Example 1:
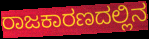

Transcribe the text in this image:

ರಾಜಕಾರಣದಲ್ಲಿನ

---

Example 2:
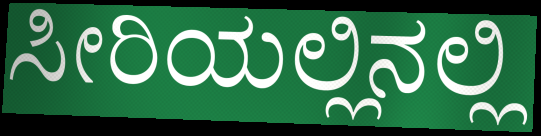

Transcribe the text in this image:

ಸೀರಿಯಲ್ಲಿನಲ್ಲಿ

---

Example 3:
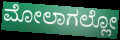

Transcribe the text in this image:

ಮೋಲಾಗಲ್ಲೋ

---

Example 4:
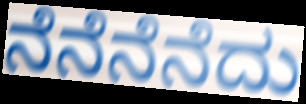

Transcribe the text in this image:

ನೆನೆನೆನೆದು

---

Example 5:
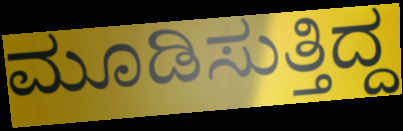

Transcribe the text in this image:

ಮೂಡಿಸುತ್ತಿದ್ದ